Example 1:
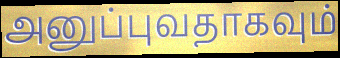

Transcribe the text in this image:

அனுப்புவதாகவும்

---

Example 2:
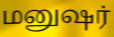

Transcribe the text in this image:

மனுஷர்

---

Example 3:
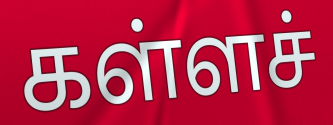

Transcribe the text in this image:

கள்ளச்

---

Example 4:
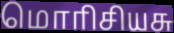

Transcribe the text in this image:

மொரிசியசு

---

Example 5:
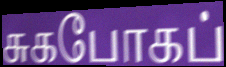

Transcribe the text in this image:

சுகபோகப்